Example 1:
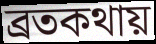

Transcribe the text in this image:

ব্রতকথায়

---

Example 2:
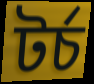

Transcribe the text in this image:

টর্চ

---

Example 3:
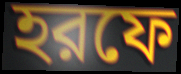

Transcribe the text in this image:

হরফে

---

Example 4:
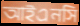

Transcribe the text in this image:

আইএনসি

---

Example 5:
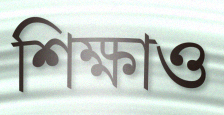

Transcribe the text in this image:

শিক্ষাও